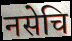
नसेचि